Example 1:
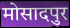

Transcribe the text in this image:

मोसादपुर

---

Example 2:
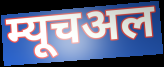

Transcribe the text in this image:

म्यूचअल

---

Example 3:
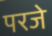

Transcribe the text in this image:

परजे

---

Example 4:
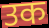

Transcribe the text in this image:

उक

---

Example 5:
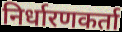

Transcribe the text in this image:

निर्धारणकर्ता